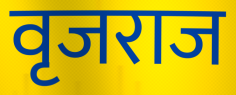
वृजराज